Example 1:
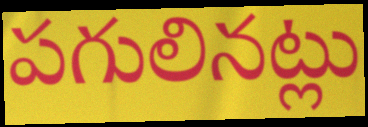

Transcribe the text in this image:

పగులినట్లు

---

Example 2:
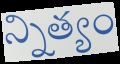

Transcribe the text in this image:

న్నిత్యం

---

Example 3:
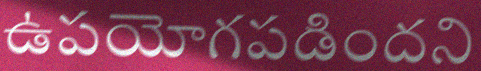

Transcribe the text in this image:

ఉపయోగపడిందని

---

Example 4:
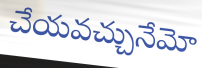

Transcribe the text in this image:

చేయవచ్చునేమో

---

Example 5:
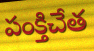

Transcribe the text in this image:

పంక్తిచేత